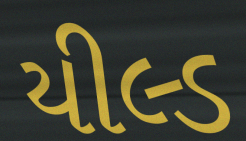
યીલ્ડ